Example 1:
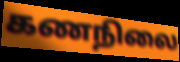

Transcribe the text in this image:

கணநிலை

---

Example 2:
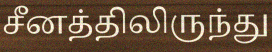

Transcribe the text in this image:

சீனத்திலிருந்து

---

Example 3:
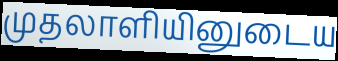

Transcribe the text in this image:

முதலாளியினுடைய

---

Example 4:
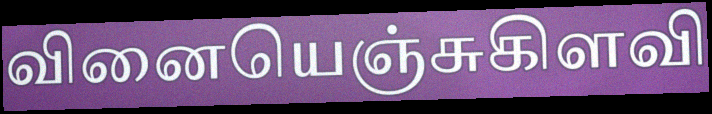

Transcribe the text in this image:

வினையெஞ்சுகிளவி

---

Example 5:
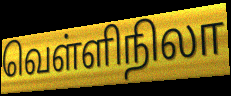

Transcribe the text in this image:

வெள்ளிநிலா